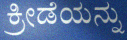
ಕ್ರೀಡೆಯನ್ನು